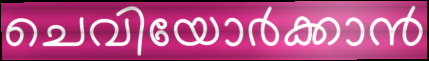
ചെവിയോർക്കാൻ